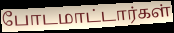
போடமாட்டார்கள்